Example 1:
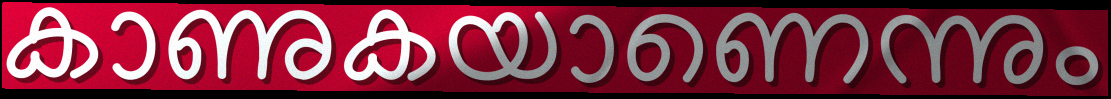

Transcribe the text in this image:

കാണുകയാണെന്നും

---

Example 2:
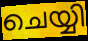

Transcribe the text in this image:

ചെയ്യി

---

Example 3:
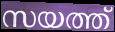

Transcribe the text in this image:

സയത്ത്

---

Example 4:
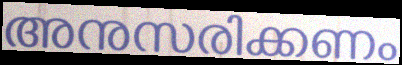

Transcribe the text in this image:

അനുസരിക്കണം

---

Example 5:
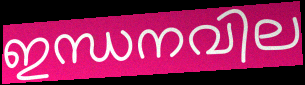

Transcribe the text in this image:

ഇന്ധനവില